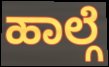
ಹಾಲ್ಗೆ